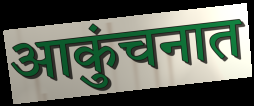
आकुंचनात